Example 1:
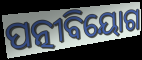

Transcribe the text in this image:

ପତ୍ନୀବିୟୋଗ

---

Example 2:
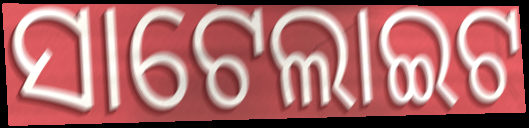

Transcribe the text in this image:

ସାଟେଲାଇଟ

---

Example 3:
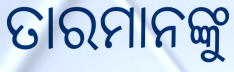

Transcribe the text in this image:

ତାରମାନଙ୍କୁ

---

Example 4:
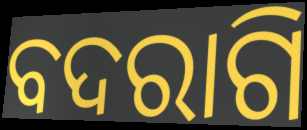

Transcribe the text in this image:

ବଦରାଗି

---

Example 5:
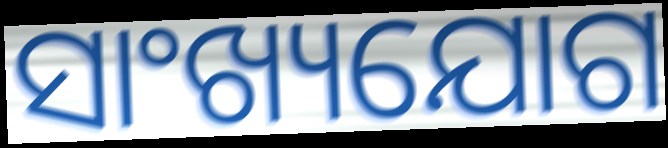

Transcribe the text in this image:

ସାଂଖ୍ୟଯୋଗ